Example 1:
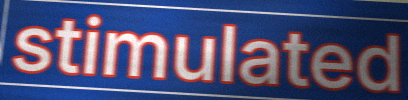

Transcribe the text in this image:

stimulated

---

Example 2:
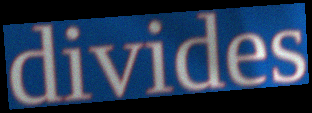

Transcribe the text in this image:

divides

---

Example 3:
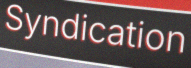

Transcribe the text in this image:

Syndication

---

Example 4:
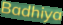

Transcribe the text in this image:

Badhiya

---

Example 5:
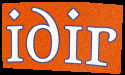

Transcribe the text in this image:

idir